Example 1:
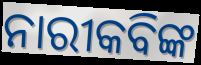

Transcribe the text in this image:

ନାରୀକବିଙ୍କ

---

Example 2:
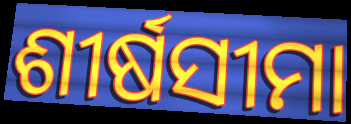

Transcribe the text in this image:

ଶୀର୍ଷସୀମା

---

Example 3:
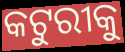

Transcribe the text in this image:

କଟୁରୀକୁ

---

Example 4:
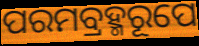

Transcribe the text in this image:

ପରମବ୍ରହ୍ମରୂପେ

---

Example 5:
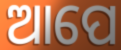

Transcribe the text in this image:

ଆପେ